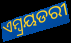
ଏମ୍ବ୍ରୟଡରୀ